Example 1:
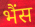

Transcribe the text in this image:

भैंस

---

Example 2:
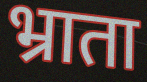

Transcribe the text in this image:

भ्राता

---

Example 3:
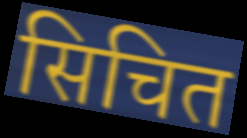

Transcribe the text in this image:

सिचित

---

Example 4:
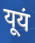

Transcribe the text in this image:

यूयं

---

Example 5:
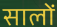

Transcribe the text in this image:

सालों